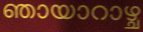
ഞായാറാഴ്ച